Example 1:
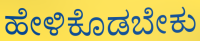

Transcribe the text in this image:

ಹೇಳಿಕೊಡಬೇಕು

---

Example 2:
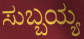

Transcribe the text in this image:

ಸುಬ್ಬಯ್ಯ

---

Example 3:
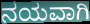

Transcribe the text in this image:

ನಯವಾಗಿ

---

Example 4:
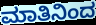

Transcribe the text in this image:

ಮಾತಿನಿಂದ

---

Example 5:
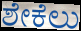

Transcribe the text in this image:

ಶೇಕೆಲು